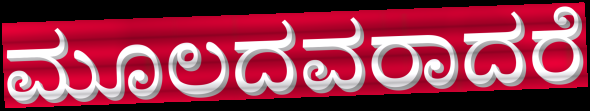
ಮೂಲದವರಾದರೆ